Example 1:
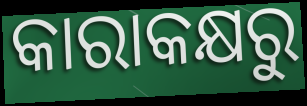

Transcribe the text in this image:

କାରାକକ୍ଷରୁ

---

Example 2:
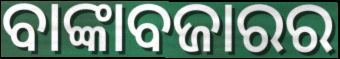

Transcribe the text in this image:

ବାଙ୍କାବଜାରର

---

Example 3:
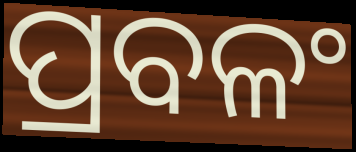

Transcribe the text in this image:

ପ୍ରବଳଂ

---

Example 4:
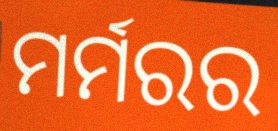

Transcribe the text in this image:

ମର୍ମରର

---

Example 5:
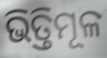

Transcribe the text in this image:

ଭିତ୍ତିମୂଳ